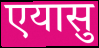
एयासु